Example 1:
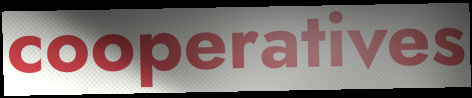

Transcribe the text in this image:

cooperatives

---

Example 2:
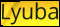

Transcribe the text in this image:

Lyuba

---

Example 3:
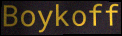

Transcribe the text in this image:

Boykoff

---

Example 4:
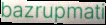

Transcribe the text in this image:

bazrupmati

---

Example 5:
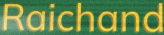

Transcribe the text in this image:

Raichand